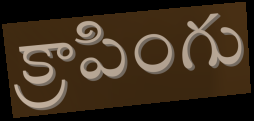
క్రాపింగు